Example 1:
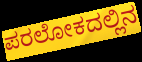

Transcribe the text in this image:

ಪರಲೋಕದಲ್ಲಿನ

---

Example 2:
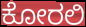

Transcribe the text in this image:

ಕೋರಲಿ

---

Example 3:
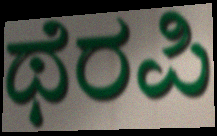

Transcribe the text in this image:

ಥೆರಪಿ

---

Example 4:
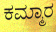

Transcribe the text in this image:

ಕಮ್ಮಾರ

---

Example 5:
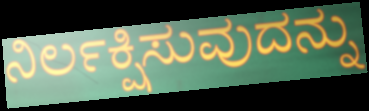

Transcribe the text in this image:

ನಿರ್ಲಕ್ಷಿಸುವುದನ್ನು